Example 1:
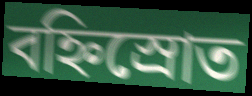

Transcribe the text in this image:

বহ্নিস্রোত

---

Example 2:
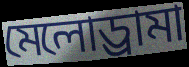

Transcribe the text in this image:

মেলোড্রামা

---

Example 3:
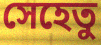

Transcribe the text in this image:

সেহেতু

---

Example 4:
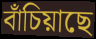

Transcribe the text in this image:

বাঁচিয়াছে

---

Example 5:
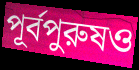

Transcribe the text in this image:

পূর্বপুরুষও